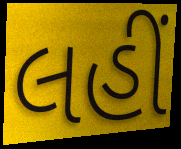
લહીં